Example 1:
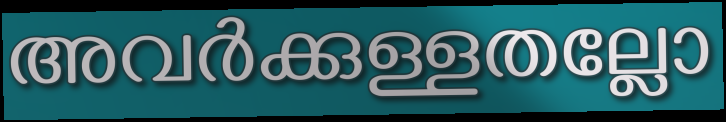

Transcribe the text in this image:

അവർക്കുള്ളതല്ലോ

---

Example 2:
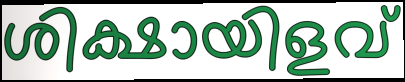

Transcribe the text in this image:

ശിക്ഷായിളവ്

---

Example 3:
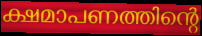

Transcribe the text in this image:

ക്ഷമാപണത്തിന്റെ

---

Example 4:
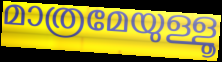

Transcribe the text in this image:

മാത്രമേയുള്ളൂ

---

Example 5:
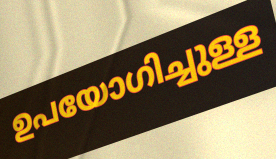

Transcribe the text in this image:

ഉപയോഗിച്ചുള്ള